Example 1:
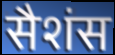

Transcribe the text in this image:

सैशंस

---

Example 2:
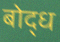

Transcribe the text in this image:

बोद्ध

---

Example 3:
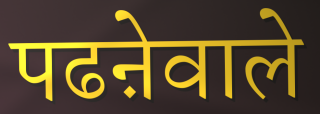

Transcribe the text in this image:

पढऩेवाले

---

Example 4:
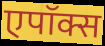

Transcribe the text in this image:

एपॉक्स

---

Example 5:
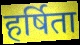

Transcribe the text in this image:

हर्षिता